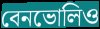
বেনভোলিও